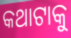
କଥାଟାକୁ